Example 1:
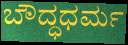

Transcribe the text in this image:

ಬೌದ್ಧಧರ್ಮ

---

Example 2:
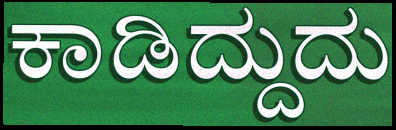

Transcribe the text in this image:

ಕಾಡಿದ್ದುದು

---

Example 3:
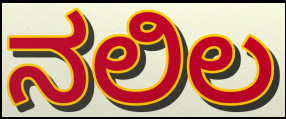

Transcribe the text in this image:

ನಲಿಲ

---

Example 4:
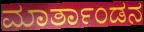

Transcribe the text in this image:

ಮಾರ್ತಾಂಡನ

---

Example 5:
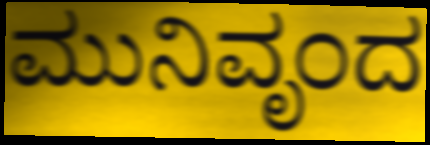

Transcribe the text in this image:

ಮುನಿವೃಂದ